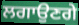
ਲਗਾਉਣਗੇ